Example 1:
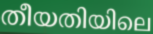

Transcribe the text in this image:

തീയതിയിലെ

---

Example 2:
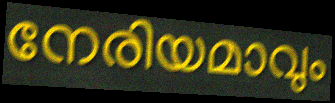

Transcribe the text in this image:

നേരിയമാവും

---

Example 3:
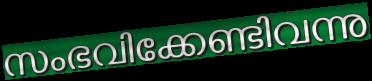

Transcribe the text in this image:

സംഭവിക്കേണ്ടിവന്നു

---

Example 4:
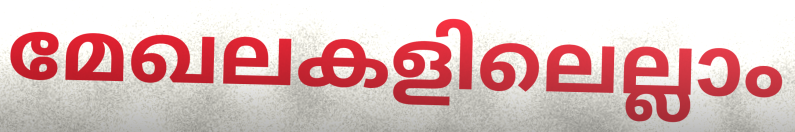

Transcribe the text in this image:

മേഖലകളിലെല്ലാം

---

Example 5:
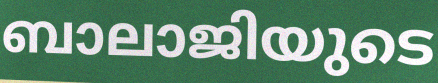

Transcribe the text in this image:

ബാലാജിയുടെ